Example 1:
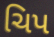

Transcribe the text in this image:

ચિપ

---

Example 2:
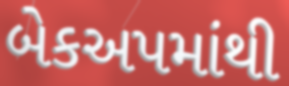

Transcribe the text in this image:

બેકઅપમાંથી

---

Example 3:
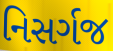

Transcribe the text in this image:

નિસર્ગજ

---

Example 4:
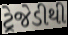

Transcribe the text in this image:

ટ્રેજેડીથી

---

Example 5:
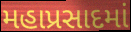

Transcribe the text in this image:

મહાપ્રસાદમાં